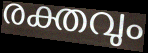
രക്തവും